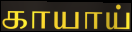
காயாய்